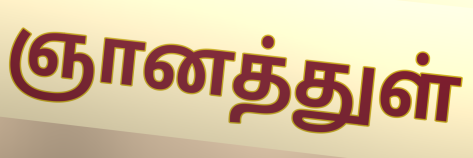
ஞானத்துள்